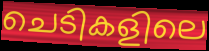
ചെടികളിലെ